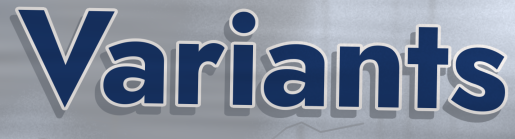
Variants